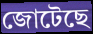
জোটেছে